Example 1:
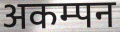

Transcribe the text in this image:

अकम्पन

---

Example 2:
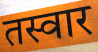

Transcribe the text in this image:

तस्वार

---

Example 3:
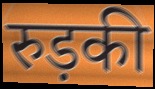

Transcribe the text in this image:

रुड़की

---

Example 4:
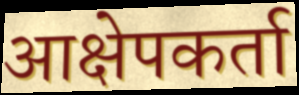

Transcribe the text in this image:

आक्षेपकर्ता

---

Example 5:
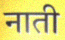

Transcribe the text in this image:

नाती